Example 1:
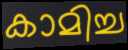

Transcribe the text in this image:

കാമിച്ച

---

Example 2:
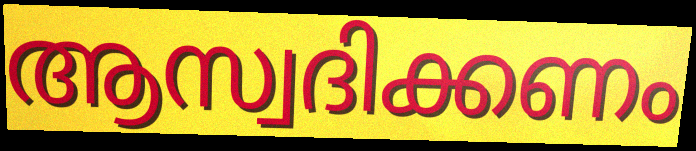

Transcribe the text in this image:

ആസ്വദിക്കണം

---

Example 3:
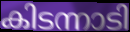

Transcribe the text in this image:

കിടന്നാടി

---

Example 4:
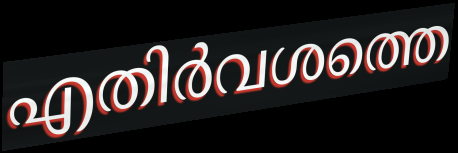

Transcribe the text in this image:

എതിർവശത്തെ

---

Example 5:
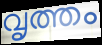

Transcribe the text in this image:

വൃത്തം